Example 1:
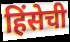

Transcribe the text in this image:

हिंसेची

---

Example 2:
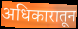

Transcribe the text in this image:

अधिकारातून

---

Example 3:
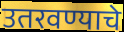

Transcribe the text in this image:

उतरवण्याचे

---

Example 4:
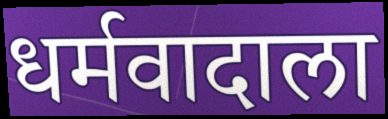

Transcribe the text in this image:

धर्मवादाला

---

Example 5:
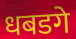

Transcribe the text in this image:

धबडगे